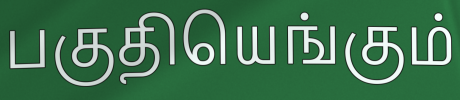
பகுதியெங்கும்